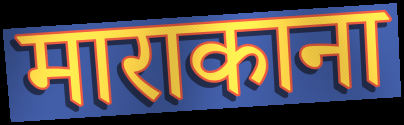
माराकाना